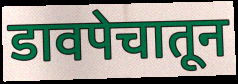
डावपेचातून